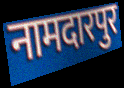
नामदारपुर